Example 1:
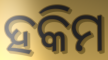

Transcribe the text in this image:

ହକିମ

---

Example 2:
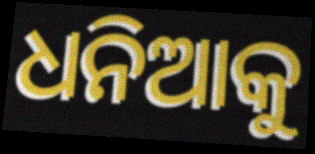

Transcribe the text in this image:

ଧନିଆକୁ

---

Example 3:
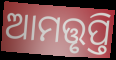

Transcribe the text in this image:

ଆମତ୍ତୃପ୍ତି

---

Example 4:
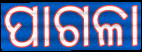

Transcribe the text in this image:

ପାଗଳା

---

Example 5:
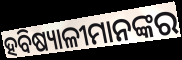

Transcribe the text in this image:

ହବିଷ୍ୟାଳୀମାନଙ୍କର